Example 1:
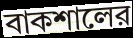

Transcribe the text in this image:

বাকশালের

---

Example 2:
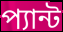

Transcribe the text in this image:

প্যান্ট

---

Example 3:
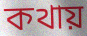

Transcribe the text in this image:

কথায়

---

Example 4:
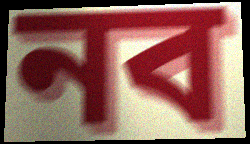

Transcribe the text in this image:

নব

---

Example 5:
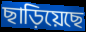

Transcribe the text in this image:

ছাড়িয়েছে